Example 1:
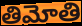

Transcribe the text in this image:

తిమోతి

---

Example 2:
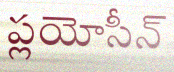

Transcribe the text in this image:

ప్లయోసీన్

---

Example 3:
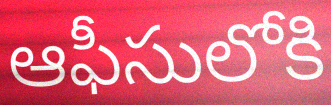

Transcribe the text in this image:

ఆఫీసులోకి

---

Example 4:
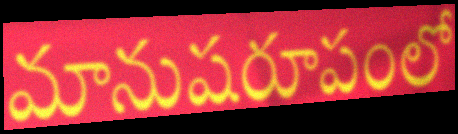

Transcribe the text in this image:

మానుషరూపంలో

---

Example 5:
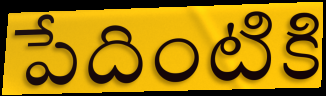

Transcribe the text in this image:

పేదింటికి